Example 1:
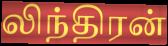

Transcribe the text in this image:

லிந்திரன்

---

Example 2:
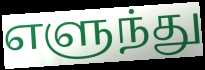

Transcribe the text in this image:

எளுந்து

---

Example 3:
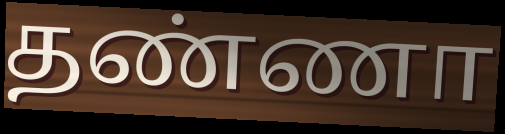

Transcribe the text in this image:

தண்ணா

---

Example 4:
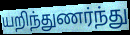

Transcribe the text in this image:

யறிந்துணர்ந்து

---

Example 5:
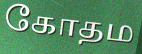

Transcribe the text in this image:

கோதம